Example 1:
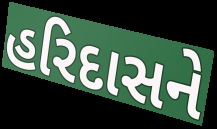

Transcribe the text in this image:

હરિદાસને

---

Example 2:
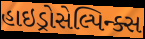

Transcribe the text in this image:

હાઇડ્રોસેલ્પિન્ક્સ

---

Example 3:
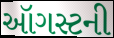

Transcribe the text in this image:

ઑગસ્ટની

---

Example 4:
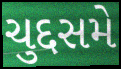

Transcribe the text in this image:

ચુદ્દસમે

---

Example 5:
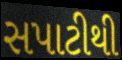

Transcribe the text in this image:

સપાટીથી